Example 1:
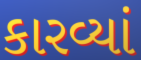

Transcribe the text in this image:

કારવ્યાં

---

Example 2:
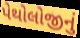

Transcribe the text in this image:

પેથોલોજીનું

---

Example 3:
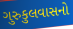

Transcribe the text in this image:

ગુરુકુલવાસનો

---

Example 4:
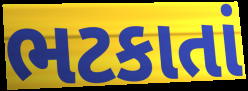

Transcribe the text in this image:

ભટકાતાં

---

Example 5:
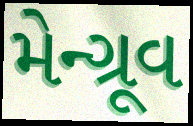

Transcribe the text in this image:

મેન્ગ્રૂવ